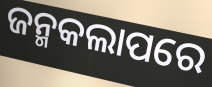
ଜନ୍ମକଲାପରେ